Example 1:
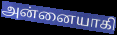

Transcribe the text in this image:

அன்னையாகி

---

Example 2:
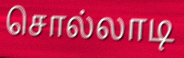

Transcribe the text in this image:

சொல்லாடி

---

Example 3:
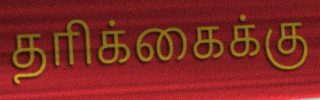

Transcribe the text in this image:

தரிக்கைக்கு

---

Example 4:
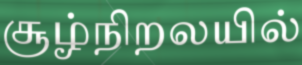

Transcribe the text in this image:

சூழ்நிறலயில்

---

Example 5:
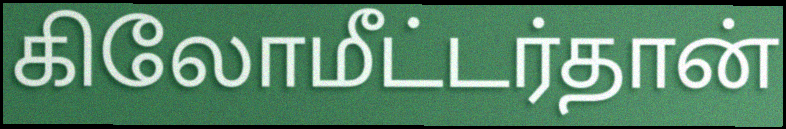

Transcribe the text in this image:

கிலோமீட்டர்தான்